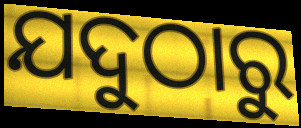
ଯଦୁଠାରୁ